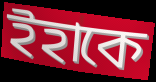
ইহাকে